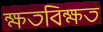
ক্ষতবিক্ষত